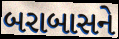
બરાબાસને